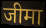
जीमा